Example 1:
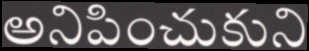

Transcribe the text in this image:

అనిపించుకుని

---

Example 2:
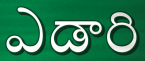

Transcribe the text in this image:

ఎడారి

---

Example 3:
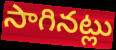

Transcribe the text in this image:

సాగినట్లు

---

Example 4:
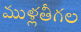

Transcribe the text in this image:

ముళ్లతీగల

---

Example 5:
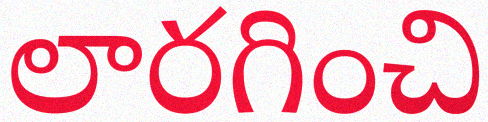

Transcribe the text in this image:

లారగించి